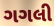
ગગલી